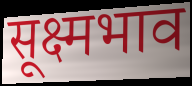
सूक्ष्मभाव